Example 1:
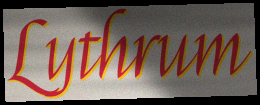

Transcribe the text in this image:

Lythrum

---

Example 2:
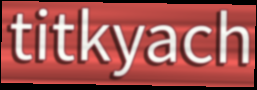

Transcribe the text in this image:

titkyach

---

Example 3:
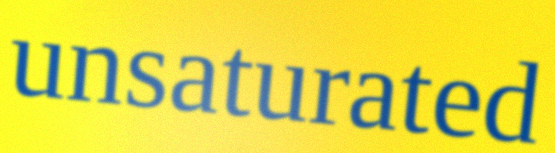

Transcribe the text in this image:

unsaturated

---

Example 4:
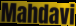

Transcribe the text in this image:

Mahdavi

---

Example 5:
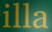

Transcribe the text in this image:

illa